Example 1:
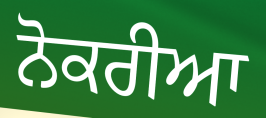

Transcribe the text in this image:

ਨੋਕਰੀਆ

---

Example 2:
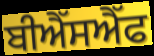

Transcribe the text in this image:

ਬੀਐੱਸਐੱਫ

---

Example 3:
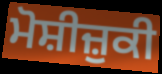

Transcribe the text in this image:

ਮੋਸ਼ੀਜ਼ੁਕੀ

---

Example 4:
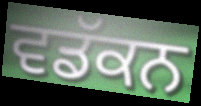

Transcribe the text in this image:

ਵਡੱਕਨ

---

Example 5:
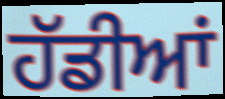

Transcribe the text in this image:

ਹੱਡੀਆਂ